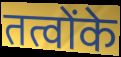
तत्वोंके